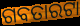
ଗବତାରଟା